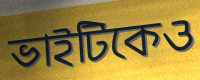
ভাইটিকেও